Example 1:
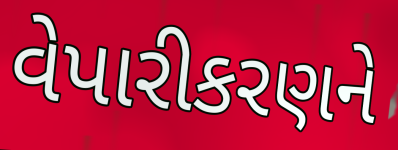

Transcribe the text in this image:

વેપારીકરણને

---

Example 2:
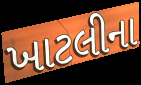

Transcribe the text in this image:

ખાટલીના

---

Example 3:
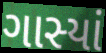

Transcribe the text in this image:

ગાસ્યાં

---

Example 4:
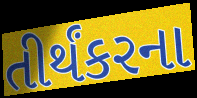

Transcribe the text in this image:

તીર્થંકરના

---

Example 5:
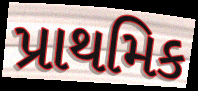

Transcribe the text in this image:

પ્રાથમિક